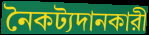
নৈকট্যদানকারী